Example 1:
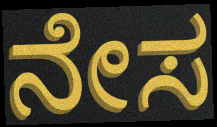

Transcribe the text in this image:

ನೇಸ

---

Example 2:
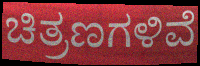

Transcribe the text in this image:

ಚಿತ್ರಣಗಳಿವೆ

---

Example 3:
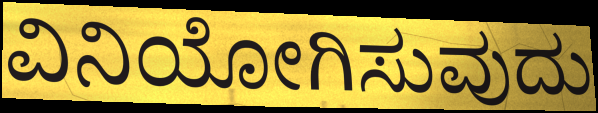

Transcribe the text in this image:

ವಿನಿಯೋಗಿಸುವುದು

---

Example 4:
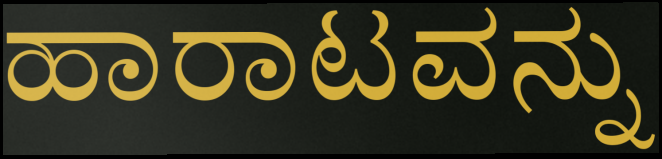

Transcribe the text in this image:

ಹಾರಾಟವನ್ನು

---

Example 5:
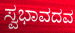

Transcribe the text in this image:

ಸ್ವಭಾವದವ